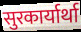
सुरकार्यार्था